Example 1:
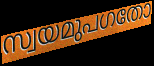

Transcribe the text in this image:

സ്വയമുപഗതോ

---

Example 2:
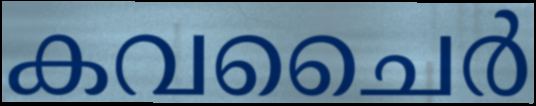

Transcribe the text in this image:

കവചൈർ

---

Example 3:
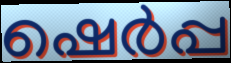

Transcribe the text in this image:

ഷെർപ്പ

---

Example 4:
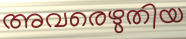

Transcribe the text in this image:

അവരെഴുതിയ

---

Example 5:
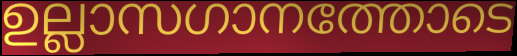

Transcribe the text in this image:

ഉല്ലാസഗാനത്തോടെ